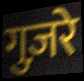
गुज़रे